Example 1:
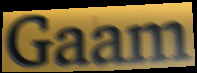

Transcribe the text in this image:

Gaam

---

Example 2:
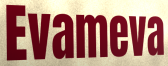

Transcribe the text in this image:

Evameva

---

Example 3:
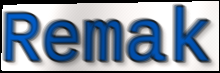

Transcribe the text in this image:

Remak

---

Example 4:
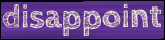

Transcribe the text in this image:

disappoint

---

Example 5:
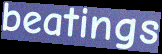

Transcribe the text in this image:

beatings